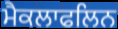
ਮੈਕਲਾਫਲਿਨ